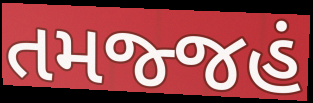
તમજ્જહં